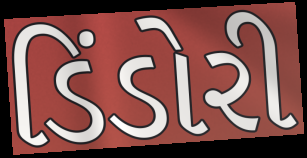
ડિંડોરી